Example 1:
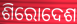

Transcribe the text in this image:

ଶିରୋଦେଶ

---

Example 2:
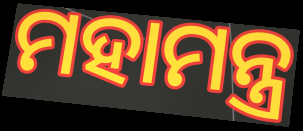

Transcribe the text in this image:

ମହାମନ୍ତ୍ର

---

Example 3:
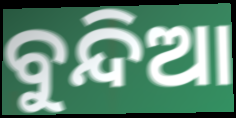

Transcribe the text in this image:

ବୁନ୍ଦିଆ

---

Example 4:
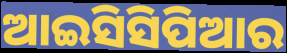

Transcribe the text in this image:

ଆଇସିସିପିଆର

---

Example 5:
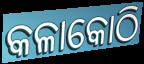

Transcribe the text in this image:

କଳାକୋଠି